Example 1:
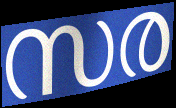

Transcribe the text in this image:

സര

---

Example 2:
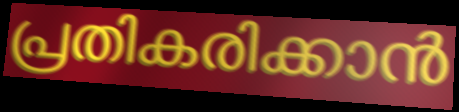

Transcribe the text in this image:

പ്രതികരിക്കാൻ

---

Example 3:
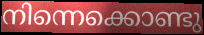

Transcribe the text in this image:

നിന്നെക്കൊണ്ടു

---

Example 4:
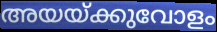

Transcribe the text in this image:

അയയ്ക്കുവോളം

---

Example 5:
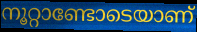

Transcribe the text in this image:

നൂറ്റാണ്ടോടെയാണ്